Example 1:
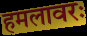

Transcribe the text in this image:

हमलावरः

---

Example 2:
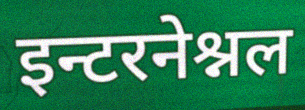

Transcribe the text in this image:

इन्टरनेश्नल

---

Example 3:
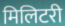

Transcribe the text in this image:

मिलिटरी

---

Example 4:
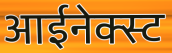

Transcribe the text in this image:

आईनेक्स्ट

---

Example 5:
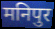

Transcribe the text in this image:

मनिपुर